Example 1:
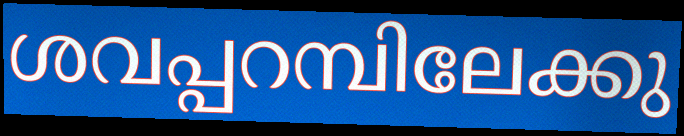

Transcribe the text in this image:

ശവപ്പറമ്പിലേക്കു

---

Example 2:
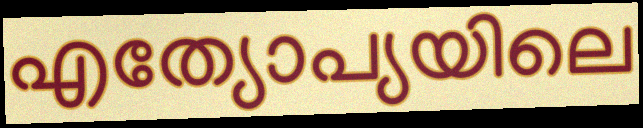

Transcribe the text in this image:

എത്യോപ്യയിലെ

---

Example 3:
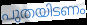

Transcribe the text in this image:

പുതയിടണം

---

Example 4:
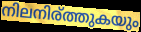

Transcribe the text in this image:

നിലനിര്ത്തുകയും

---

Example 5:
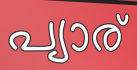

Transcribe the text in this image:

പ്യാര്